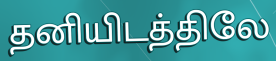
தனியிடத்திலே